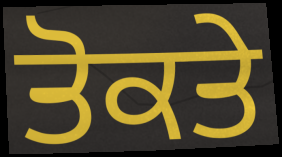
ਤੋਕਤੇ